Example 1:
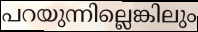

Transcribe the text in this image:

പറയുന്നില്ലെങ്കിലും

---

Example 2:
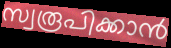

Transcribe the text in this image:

സ്വരൂപിക്കാൻ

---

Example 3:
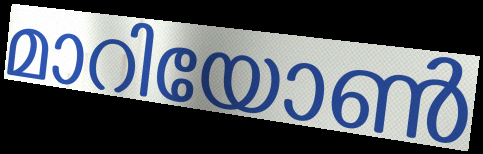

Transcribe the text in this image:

മാറിയോൺ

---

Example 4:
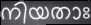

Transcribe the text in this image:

നിയതാഃ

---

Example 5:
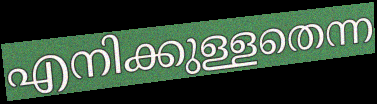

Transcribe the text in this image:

എനിക്കുള്ളതെന്ന